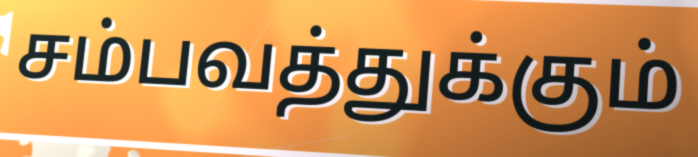
சம்பவத்துக்கும்